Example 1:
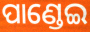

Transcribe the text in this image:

ପାଣ୍ଡେଇ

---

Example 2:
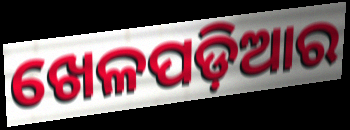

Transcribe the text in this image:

ଖେଳପଡ଼ିଆର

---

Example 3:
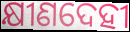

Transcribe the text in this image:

କ୍ଷୀଣଦେହୀ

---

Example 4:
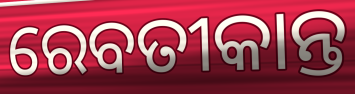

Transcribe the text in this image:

ରେବତୀକାନ୍ତ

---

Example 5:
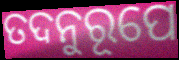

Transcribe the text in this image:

ତଦନୁରୂପେ